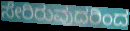
ಸೇರಿರುವುದರಿಂದ